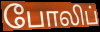
போலிப்